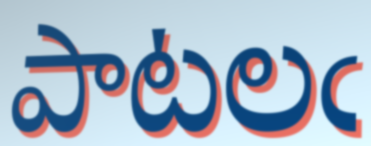
పాటలఁ